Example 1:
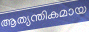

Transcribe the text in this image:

ആത്യന്തികമായ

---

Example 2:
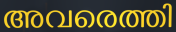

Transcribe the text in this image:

അവരെത്തി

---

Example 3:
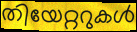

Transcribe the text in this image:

തിയേറ്ററുകൾ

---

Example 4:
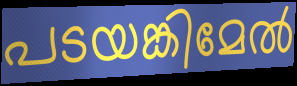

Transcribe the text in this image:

പടയങ്കിമേൽ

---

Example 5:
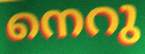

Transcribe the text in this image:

നെറു